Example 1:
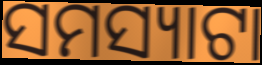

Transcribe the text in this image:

ସମସ୍ୟାଟା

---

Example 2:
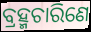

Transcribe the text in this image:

ବ୍ରହ୍ମଚାରିଣେ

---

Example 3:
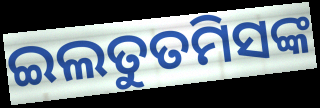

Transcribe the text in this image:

ଇଲତୁତମିସଙ୍କ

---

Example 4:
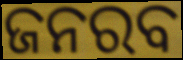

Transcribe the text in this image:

ଜନରବ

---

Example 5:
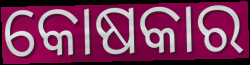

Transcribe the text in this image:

କୋଷକାର